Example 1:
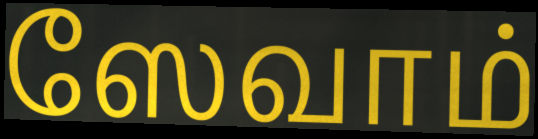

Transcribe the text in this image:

ஸேவாம்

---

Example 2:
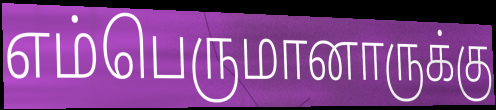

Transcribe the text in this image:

எம்பெருமானாருக்கு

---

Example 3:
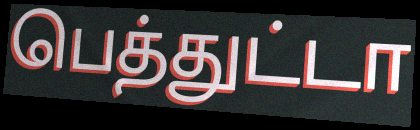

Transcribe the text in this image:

பெத்துட்டா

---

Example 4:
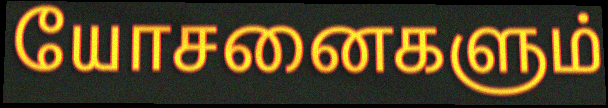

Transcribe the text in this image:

யோசனைகளும்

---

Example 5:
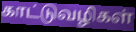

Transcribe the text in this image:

காட்டுவழிகள்